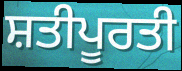
ਸ਼ਤੀਪੂਰਤੀ